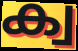
ക്വ